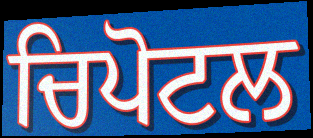
ਚਿਪੋਟਲ